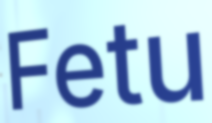
Fetu